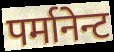
पर्मानेन्ट